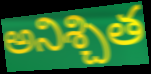
అనిశ్చిత